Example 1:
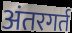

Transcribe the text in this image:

अंतरगर्त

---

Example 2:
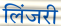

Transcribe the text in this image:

लिंजरी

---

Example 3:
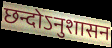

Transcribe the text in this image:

छन्दोऽनुशासन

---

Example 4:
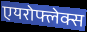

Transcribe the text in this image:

एयरोफ्लेक्स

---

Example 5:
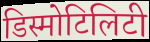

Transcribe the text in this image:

डिस्मोटिलिटी